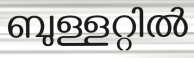
ബുള്ളറ്റിൽ